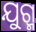
ଯୁଗ୍ମ